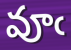
వూఁ